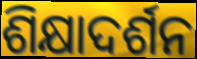
ଶିକ୍ଷାଦର୍ଶନ